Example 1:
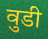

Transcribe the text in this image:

वुडी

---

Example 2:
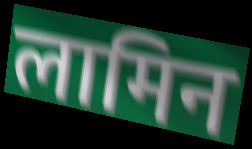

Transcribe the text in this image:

लामिन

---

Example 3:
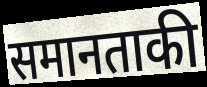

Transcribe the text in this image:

समानताकी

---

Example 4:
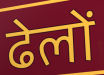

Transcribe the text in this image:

ढेलों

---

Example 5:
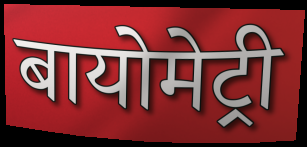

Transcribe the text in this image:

बायोमेट्री